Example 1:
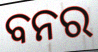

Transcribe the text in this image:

ବନର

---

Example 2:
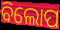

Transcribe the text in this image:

ବିଲୋପ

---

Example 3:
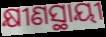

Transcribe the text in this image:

କ୍ଷୀଣସ୍ଥାୟୀ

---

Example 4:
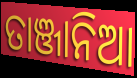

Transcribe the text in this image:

ତାଞ୍ଜାନିଆ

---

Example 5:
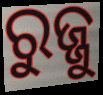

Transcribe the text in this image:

ରୁଜ୍ଜୁ